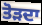
ਤੋੜਦਾ